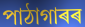
পাঠাগাৰৰ